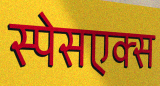
स्‍पेसएक्‍स